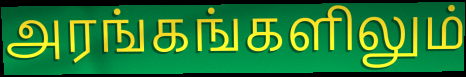
அரங்கங்களிலும்